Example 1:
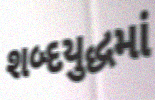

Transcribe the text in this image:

શબ્દયુદ્ધમાં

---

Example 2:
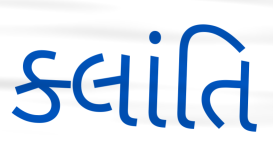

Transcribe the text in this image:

ક્લાંતિ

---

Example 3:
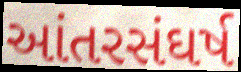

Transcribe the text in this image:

આંતરસંઘર્ષ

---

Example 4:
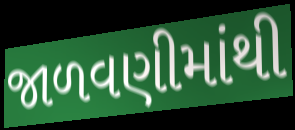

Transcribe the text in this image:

જાળવણીમાંથી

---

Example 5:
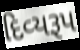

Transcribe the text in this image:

દિવ્‍યરૂપ